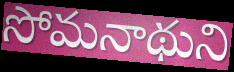
సోమనాథుని